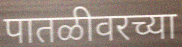
पातळीवरच्या